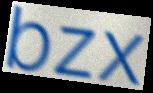
bzx